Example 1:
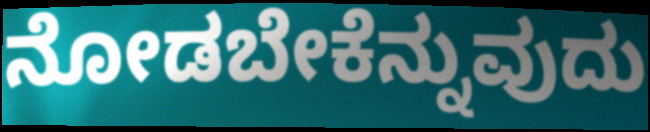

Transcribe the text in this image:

ನೋಡಬೇಕೆನ್ನುವುದು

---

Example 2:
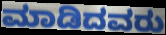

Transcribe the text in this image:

ಮಾಡಿದವರು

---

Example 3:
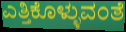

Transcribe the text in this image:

ಎತ್ತಿಕೊಳ್ಳುವಂತೆ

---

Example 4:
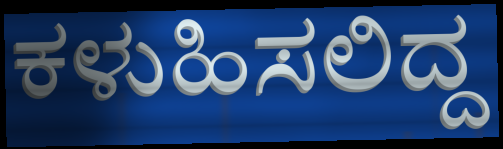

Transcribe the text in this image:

ಕಳುಹಿಸಲಿದ್ದ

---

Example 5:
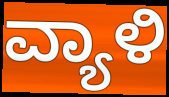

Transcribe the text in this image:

ವ್ಯಾಳಿ